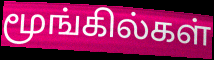
மூங்கில்கள்